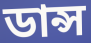
ডান্স